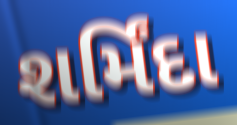
શર્મિંદા